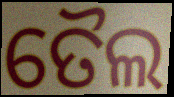
ତୈଲ